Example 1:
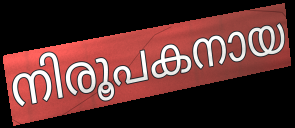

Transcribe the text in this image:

നിരൂപകനായ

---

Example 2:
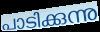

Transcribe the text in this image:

പാടിക്കുന്നു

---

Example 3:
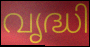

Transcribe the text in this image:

വൃദ്ധി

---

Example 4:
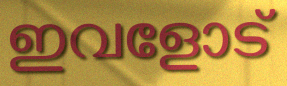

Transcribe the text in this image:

ഇവളോട്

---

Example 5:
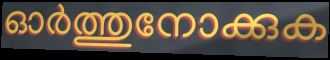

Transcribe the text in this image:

ഓർത്തുനോക്കുക